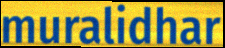
muralidhar